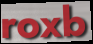
roxb